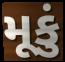
મૂકું